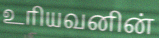
உரியவனின்